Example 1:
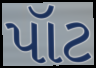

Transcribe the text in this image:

પૉટ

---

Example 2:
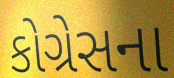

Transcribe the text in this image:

કોગ્રેસના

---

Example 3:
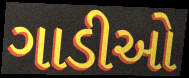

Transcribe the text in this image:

ગાડીઓ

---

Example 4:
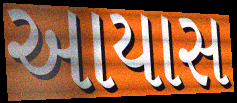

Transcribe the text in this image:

આયાસ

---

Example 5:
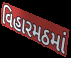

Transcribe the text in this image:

વિહારમઠમાં